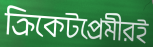
ক্রিকেটপ্রেমীরই